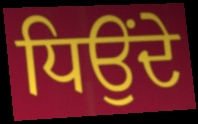
ਧਿਉਂਦੇ